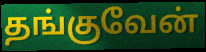
தங்குவேன்